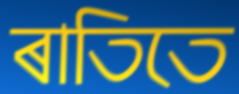
ৰাতিতে